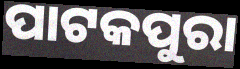
ପାଟକପୁରା